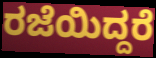
ರಜೆಯಿದ್ದರೆ